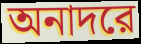
অনাদরে